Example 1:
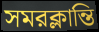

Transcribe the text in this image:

সমরক্লান্তি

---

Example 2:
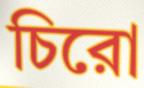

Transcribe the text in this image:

চিরো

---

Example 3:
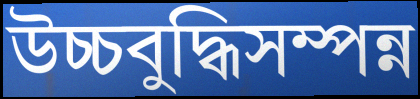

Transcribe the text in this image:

উচ্চবুদ্ধিসম্পন্ন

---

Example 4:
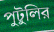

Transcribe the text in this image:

পুটুলির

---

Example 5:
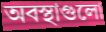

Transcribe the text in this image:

অবস্থাগুলো